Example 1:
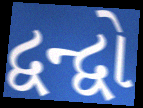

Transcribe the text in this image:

દ્વન્દ્વો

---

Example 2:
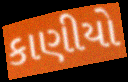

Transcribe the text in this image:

કાણીયો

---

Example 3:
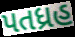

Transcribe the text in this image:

પતધ્રહ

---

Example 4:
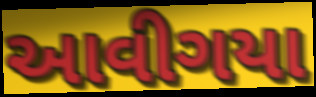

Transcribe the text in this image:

આવીગયા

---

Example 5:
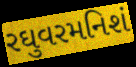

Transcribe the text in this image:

રઘુવરમનિશં